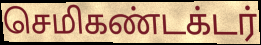
செமிகண்டக்டர்